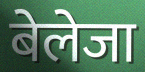
बेलेजा